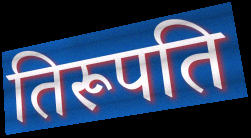
तिरूपति